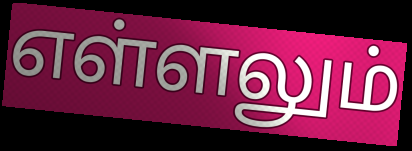
எள்ளலும்